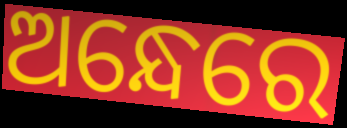
ଅନ୍ଧେରେ